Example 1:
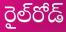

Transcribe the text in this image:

రైల్‌రోడ్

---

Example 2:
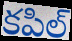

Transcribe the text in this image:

కపిల్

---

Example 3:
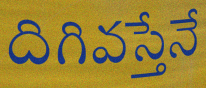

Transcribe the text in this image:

దిగివస్తేనే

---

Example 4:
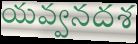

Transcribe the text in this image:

యవ్వనదశ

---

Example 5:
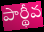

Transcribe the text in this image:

పార్థీవ